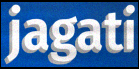
jagati